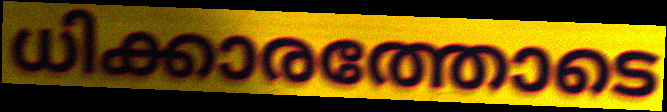
ധിക്കാരത്തോടെ